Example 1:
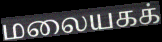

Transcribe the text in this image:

மலையகக்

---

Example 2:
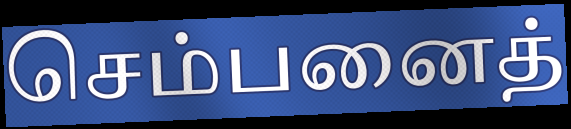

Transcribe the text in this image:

செம்பனைத்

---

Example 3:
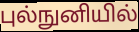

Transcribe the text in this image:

புல்நுனியில்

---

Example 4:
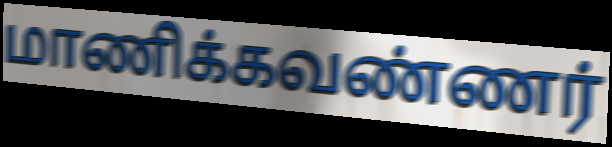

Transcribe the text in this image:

மாணிக்கவண்ணர்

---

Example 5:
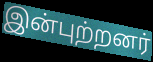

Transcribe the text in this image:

இன்புற்றனர்